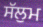
ਸੱਲੁਮ